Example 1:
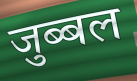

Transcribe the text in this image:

जुब्बल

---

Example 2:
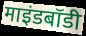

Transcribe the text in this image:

माइंडबॉडी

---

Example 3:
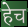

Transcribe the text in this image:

हेच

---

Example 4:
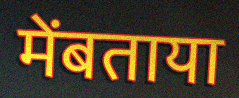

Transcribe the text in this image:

मेंबताया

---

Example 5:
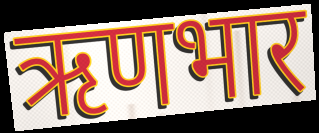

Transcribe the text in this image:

ऋणभार